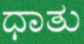
ಧಾತು